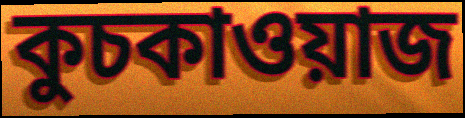
কুচকাওয়াজ